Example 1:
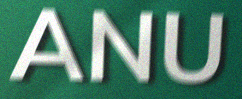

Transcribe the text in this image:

ANU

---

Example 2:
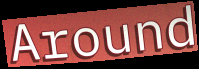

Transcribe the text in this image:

Around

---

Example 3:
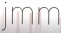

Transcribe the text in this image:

jmm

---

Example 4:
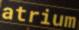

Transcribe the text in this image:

atrium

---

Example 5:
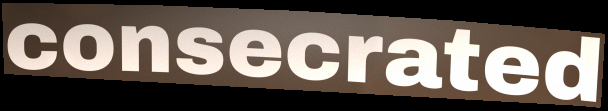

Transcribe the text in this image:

consecrated